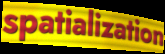
spatialization